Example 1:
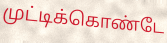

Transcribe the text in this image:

முட்டிக்கொண்டே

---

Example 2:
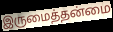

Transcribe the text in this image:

இருமைத்தன்மை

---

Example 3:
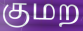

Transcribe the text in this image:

குமற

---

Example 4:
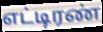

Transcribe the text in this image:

எட்டிரண்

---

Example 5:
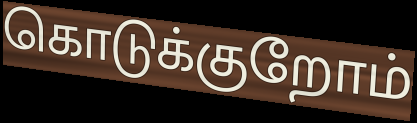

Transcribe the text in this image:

கொடுக்குறோம்